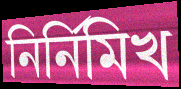
নির্নিমিখ